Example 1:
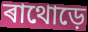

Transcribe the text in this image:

ৰাথোড়ে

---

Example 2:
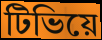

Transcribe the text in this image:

টিভিয়ে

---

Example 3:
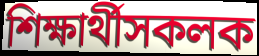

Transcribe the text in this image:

শিক্ষাৰ্থীসকলক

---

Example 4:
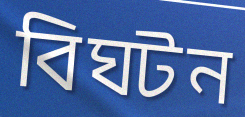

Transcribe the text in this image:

বিঘটন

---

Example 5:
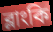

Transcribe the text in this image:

ব্লাংকি